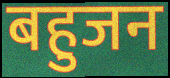
बहुजन